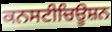
ਕਨਸਟੀਚਿਊਸ਼ਨ